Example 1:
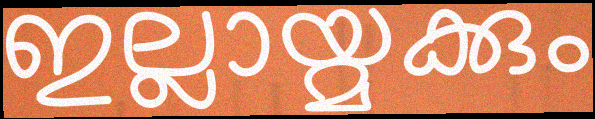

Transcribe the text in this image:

ഇല്ലായ്മക്കും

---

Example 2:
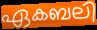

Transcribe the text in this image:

ഏകബലി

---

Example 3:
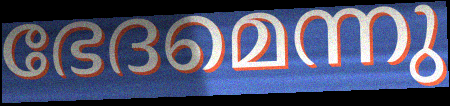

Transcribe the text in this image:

ഭേദമെന്നു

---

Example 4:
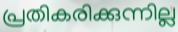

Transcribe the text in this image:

പ്രതികരിക്കുന്നില്ല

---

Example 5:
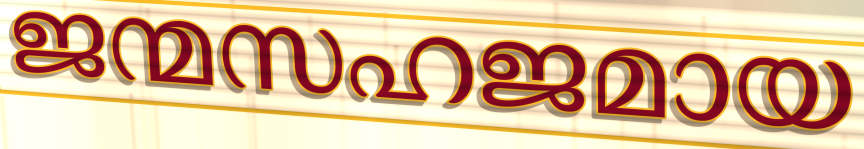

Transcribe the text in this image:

ജന്മസഹജമായ